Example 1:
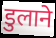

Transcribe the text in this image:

डुलाने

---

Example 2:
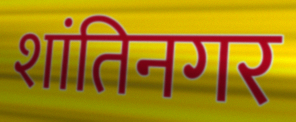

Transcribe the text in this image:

शांतिनगर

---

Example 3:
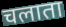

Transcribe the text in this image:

चलाता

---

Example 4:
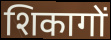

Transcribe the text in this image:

शिकागों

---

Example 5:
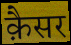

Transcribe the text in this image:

क़ैसर